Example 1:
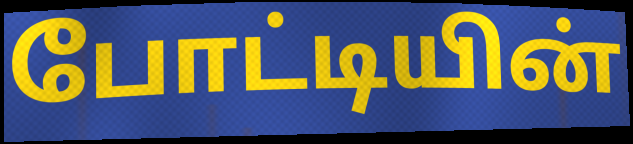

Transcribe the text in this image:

போட்டியின்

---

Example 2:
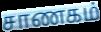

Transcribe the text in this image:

சாணகம்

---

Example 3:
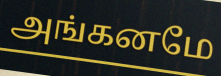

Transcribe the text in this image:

அங்கனமே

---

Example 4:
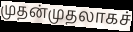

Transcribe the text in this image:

முதன்முதலாகச்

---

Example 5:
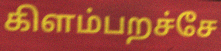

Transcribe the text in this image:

கிளம்பறச்சே